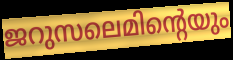
ജറുസലെമിന്റെയും